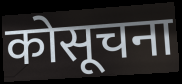
कोसूचना